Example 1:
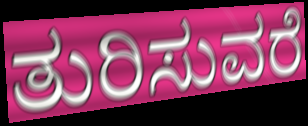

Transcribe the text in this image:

ತುರಿಸುವರೆ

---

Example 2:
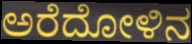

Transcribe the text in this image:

ಅರೆದೋಳಿನ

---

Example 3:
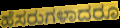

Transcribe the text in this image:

ಹೆಸರುಗಳಾದರೂ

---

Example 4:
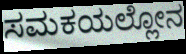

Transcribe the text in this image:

ಸಮಕಯಲ್ಲೋನ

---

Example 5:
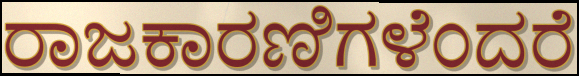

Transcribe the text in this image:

ರಾಜಕಾರಣಿಗಳೆಂದರೆ